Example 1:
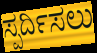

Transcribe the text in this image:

ಸ್ಪರ್ದಿಸಲು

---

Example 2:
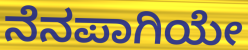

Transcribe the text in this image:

ನೆನಪಾಗಿಯೇ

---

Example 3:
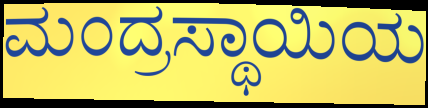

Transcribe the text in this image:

ಮಂದ್ರಸ್ಥಾಯಿಯ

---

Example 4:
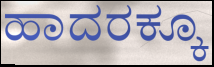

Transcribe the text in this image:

ಹಾದರಕ್ಕೂ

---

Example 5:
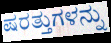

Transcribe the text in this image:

ಷರತ್ತುಗಳನ್ನು